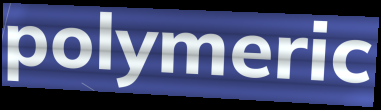
polymeric